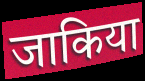
जाकिया